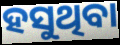
ହସୁଥିବା